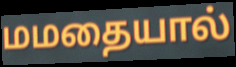
மமதையால்